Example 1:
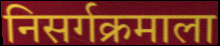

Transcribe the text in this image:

निसर्गक्रमाला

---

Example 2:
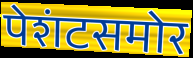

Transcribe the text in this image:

पेशंटसमोर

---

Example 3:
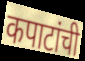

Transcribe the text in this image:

कपाटांची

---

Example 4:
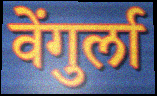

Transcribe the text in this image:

वेंगुर्ला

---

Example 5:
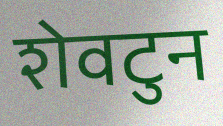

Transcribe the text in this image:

शेवटुन